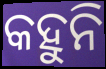
କହୁନି